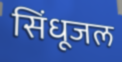
सिंधूजल